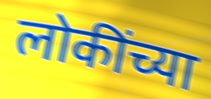
लोकींच्या